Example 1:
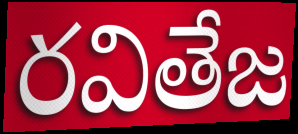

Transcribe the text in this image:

రవితేజ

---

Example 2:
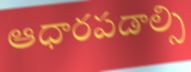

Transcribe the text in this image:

ఆధారపడాల్సి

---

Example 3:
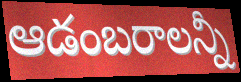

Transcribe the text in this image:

ఆడంబరాలన్నీ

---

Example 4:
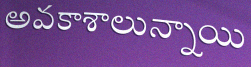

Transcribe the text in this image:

అవకాశాలున్నాయి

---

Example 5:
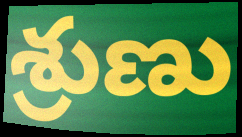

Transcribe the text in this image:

శ్రుణు